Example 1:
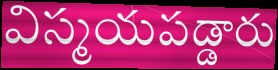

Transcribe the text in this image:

విస్మయపడ్డారు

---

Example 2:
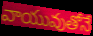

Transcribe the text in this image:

వాయువుతోనే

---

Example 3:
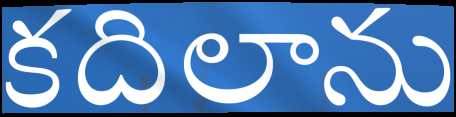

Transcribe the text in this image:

కదిలాను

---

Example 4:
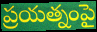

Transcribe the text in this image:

ప్రయత్నంపై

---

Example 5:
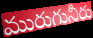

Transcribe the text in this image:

మురుగునీరు